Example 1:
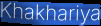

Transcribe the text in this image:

Khakhariya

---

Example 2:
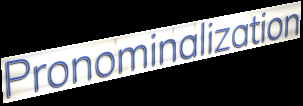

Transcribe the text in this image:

Pronominalization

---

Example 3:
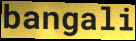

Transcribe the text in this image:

bangali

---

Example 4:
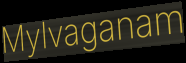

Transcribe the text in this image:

Mylvaganam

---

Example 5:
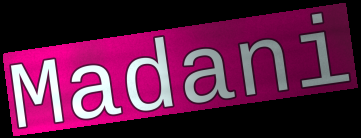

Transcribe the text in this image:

Madani